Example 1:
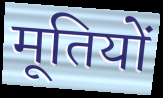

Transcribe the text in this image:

मूतियों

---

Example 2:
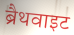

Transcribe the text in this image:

ब्रैथवाइट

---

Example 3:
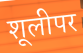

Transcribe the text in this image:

शूलीपर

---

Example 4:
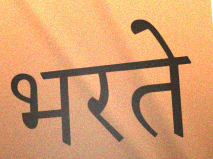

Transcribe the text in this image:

भरते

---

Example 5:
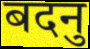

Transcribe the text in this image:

बदनु